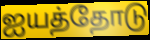
ஐயத்தோடு